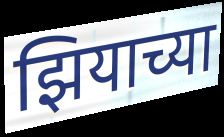
झियाच्या